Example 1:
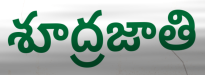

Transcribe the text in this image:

శూద్రజాతి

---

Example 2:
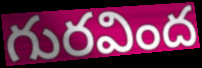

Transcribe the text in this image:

గురవింద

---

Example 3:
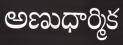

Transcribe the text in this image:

అణుధార్మిక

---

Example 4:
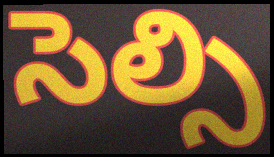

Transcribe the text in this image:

సెల్సి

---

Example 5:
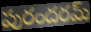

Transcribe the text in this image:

పురందరమ్